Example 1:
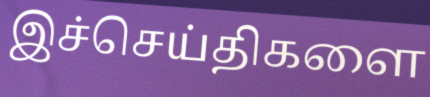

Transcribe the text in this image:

இச்செய்திகளை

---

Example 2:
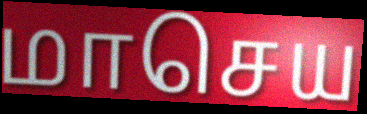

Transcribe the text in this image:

மாசெய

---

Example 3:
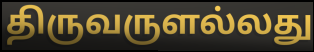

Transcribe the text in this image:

திருவருளல்லது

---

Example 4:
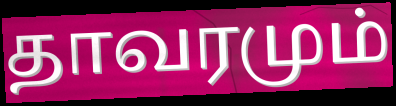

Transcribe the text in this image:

தாவரமும்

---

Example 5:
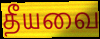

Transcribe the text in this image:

தீயவை